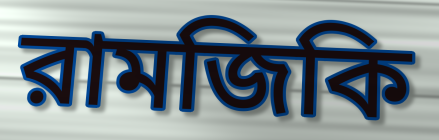
রামজিকি